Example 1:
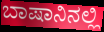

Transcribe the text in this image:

ಬಾಷಾನಿನಲ್ಲಿ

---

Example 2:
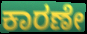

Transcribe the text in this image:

ಕಾರಣೇ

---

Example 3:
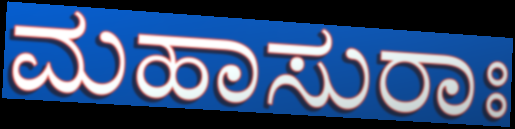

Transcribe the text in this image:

ಮಹಾಸುರಾಃ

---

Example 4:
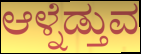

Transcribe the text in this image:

ಆಳ್ನೆಡ್ತುವ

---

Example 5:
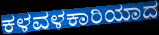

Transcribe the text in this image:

ಕಳವಳಕಾರಿಯಾದ